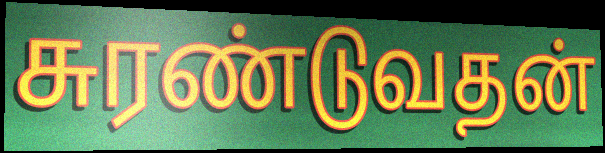
சுரண்டுவதன்